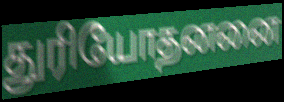
துரியோதனனை